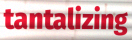
tantalizing